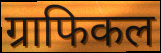
ग्राफिकल